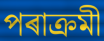
পৰাক্ৰমী